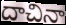
దాచినా